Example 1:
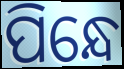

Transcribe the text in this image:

ପିନ୍ଧେ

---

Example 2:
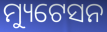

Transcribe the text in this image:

ମ୍ୟୁଟେସନ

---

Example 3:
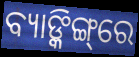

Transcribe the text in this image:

ବ୍ୟାଙ୍କିଙ୍ଗ୍‌ରେ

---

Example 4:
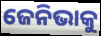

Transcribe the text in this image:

ଜେନିଭାକୁ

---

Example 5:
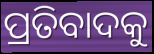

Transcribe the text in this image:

ପ୍ରତିବାଦକୁ